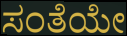
ಸಂತೆಯೇ